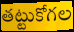
తట్టుకోగల